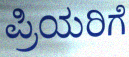
ಪ್ರಿಯರಿಗೆ